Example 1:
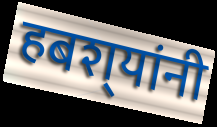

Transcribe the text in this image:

हबश्यांनी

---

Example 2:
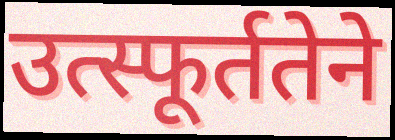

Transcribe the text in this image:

उत्स्फूर्ततेने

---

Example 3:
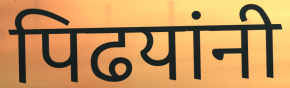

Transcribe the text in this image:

पिढयांनी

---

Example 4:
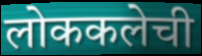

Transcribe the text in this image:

लोककलेची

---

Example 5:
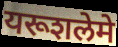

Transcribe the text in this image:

यरूशलेमे